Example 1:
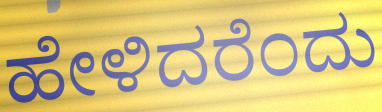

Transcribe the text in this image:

ಹೇಳಿದರೆಂದು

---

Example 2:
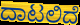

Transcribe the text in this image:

ದಾಟಲಿದೆ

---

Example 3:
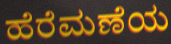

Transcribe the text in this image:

ಹೆರೆಮಣೆಯ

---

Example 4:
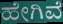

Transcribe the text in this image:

ಹೇಗಿವೆ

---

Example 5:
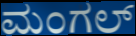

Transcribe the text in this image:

ಮಂಗಲ್